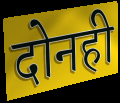
दोनही